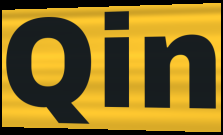
Qin